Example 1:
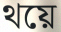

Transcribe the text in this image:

থয়ে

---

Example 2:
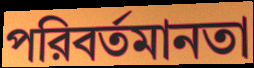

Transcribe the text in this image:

পরিবর্তমানতা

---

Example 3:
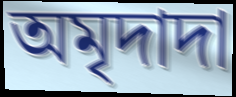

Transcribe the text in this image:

অমৃদাদা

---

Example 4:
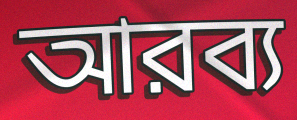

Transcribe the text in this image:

আরব্য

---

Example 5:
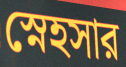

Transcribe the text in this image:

স্নেহসার